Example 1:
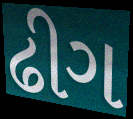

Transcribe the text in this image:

ઢીગ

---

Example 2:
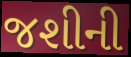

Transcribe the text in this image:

જશીની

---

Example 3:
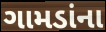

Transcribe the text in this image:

ગામડાંના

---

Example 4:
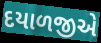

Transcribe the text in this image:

દયાળજીએ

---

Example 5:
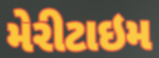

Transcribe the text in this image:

મેરીટાઇમ